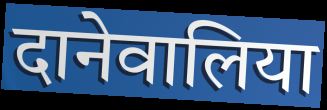
दानेवालिया